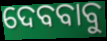
ଦେବବାବୁ